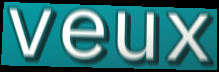
veux